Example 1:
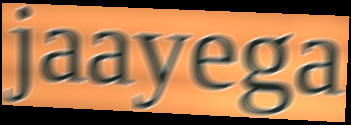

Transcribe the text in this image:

jaayega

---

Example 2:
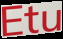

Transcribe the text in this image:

Etu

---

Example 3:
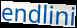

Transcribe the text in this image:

endlini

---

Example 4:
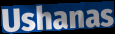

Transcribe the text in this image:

Ushanas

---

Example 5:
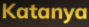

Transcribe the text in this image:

Katanya